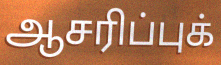
ஆசரிப்புக்